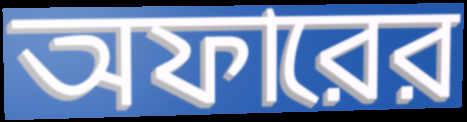
অফারের